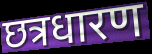
छत्रधारण